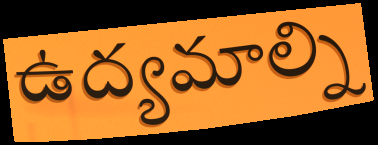
ఉద్యమాల్ని